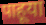
पाहूया